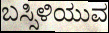
ಬಸ್ಸಿಳಿಯುವ